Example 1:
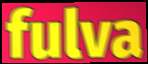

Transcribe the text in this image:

fulva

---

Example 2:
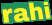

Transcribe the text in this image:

rahi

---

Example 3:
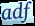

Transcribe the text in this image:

adf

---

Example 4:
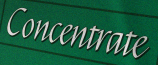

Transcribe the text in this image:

Concentrate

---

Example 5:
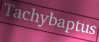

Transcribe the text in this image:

Tachybaptus